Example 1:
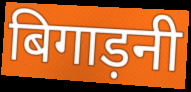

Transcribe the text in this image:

बिगाड़नी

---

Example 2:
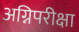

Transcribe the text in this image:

अग्निपरीक्षा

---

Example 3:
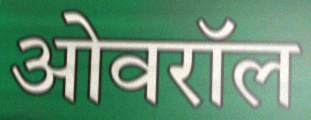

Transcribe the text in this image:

ओवरॉल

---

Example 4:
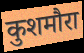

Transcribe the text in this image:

कुशमौरा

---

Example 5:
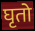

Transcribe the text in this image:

घृतो